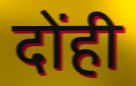
दोंही